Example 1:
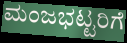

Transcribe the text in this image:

ಮಂಜಭಟ್ಟರಿಗೆ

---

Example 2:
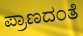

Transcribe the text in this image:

ಪ್ರಾಣದಂತೆ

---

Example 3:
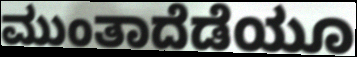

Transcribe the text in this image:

ಮುಂತಾದೆಡೆಯೂ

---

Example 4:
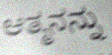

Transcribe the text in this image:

ಆತ್ಮನನ್ನು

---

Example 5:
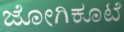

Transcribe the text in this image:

ಜೋಗಿಕೂಟೆ